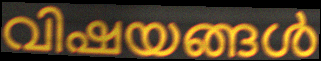
വിഷയങ്ങൾ